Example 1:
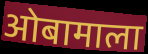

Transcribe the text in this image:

ओबामाला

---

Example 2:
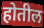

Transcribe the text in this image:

होतील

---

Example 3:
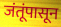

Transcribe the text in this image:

जंतूंपासून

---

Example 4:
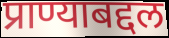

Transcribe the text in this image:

प्राण्याबद्दल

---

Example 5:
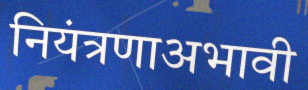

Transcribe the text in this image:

नियंत्रणाअभावी